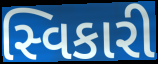
સ્વિકારી